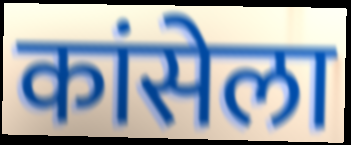
कांसेला